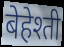
बेहेश्ती